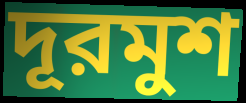
দূরমুশ